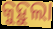
କୁହୁଲା